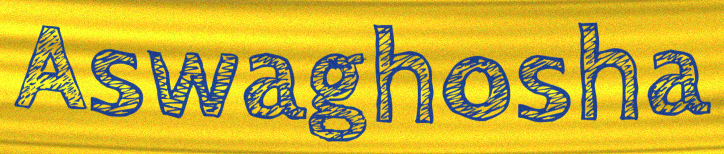
Aswaghosha